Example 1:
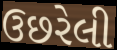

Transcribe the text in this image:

ઉછરેલી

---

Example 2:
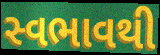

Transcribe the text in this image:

સ્વભાવથી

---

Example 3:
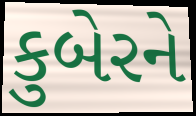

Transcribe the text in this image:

કુબેરને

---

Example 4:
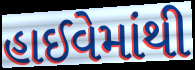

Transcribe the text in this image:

હાઈવેમાંથી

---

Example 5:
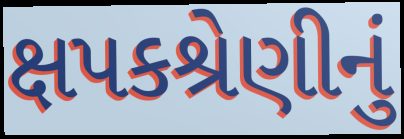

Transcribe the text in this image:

ક્ષપકશ્રેણીનું